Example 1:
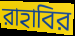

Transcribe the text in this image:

রাহাবির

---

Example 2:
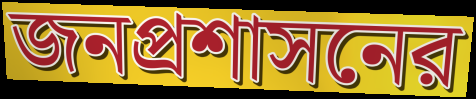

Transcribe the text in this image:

জনপ্রশাসনের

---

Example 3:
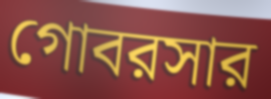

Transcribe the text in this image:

গোবরসার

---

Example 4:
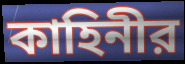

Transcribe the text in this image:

কাহিনীর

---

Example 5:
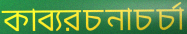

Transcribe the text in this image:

কাব্যরচনাচর্চা